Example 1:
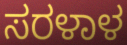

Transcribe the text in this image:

ಸರಳಾಳ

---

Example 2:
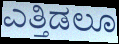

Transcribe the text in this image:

ಎತ್ತಿಡಲೂ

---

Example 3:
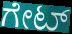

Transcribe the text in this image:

ಗೇಟ್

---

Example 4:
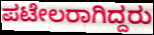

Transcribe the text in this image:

ಪಟೇಲರಾಗಿದ್ದರು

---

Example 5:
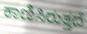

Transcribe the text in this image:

ಕಾಣಿಸಿರುತ್ತದೆ